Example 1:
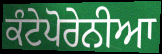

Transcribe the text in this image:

ਕੰਟੇਪੋਰੇਨੀਆ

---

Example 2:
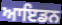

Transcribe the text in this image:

ਆਇਡਨ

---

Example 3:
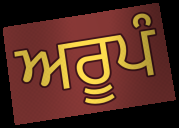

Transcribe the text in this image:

ਅਰੂਪੰ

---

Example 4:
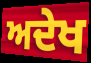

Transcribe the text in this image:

ਅਦੇਖ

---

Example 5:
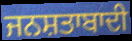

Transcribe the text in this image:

ਜਨਸ਼ਤਾਬਾਦੀ